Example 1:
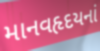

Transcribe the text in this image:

માનવહૃદયનાં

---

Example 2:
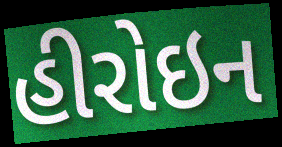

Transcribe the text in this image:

હીરોઇન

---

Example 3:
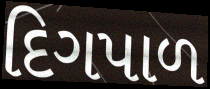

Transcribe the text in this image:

દિગપાળ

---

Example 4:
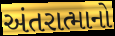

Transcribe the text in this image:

અંતરાત્માનો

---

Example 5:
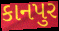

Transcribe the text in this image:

કાનપુર